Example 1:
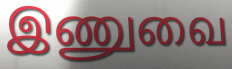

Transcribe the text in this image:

இணுவை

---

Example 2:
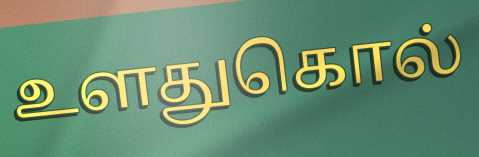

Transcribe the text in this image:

உளதுகொல்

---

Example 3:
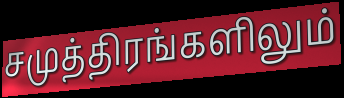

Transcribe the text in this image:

சமுத்திரங்களிலும்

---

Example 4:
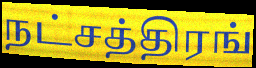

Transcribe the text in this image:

நட்சத்திரங்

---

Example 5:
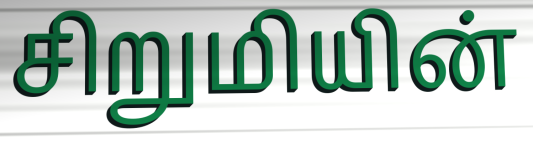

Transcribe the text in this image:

சிறுமியின்